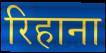
रिहाना